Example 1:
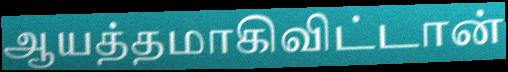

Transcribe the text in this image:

ஆயத்தமாகிவிட்டான்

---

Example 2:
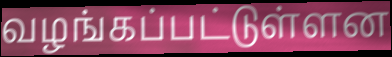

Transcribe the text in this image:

வழங்கப்பட்டுள்ளன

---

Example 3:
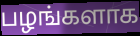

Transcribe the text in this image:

பழங்களாக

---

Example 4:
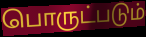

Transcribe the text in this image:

பொருட்படும்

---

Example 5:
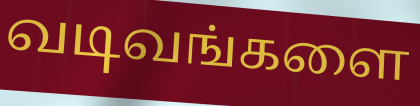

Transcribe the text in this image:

வடிவங்களை